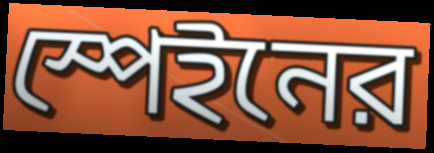
স্পেইনের